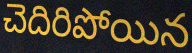
చెదిరిపోయిన